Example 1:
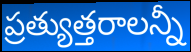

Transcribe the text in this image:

ప్రత్యుత్తరాలన్నీ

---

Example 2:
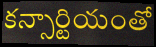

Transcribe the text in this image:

కన్సార్టియంతో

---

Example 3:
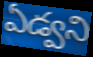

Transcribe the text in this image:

ఏడ్వని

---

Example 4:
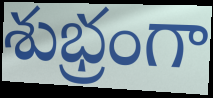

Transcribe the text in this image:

శుభ్రంగా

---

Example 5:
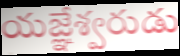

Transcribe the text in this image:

యజ్ఞేశ్వరుడు